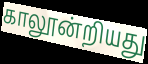
காலூன்றியது